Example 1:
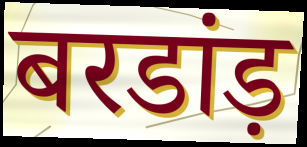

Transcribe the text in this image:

बरडांड़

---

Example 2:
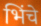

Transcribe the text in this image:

भिंचे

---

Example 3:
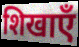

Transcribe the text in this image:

शिखाएँ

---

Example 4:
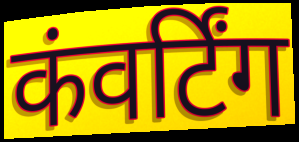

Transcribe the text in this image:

कंवर्टिंग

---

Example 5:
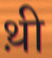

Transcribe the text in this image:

थ़ी